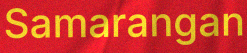
Samarangan